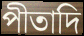
পীতাদি